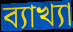
ব্যাখ্যা